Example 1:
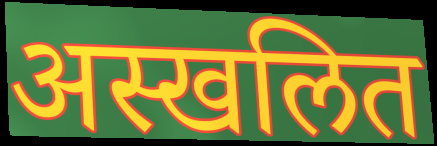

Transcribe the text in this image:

अस्खलित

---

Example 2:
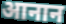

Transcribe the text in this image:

आनान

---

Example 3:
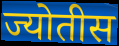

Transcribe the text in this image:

ज्योतीस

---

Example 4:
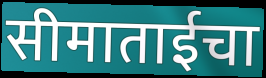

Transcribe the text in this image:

सीमाताईचा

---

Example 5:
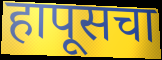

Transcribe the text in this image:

हापूसचा